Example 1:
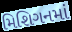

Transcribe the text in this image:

મિશિગનમાં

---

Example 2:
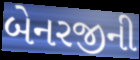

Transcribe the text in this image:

બેનરજીની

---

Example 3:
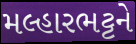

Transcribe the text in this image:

મલ્હારભટ્ટને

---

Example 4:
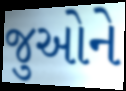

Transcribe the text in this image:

જુઓને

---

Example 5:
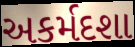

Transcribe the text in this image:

અકર્મદશા